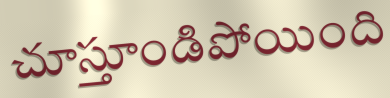
చూస్తూండిపోయింది